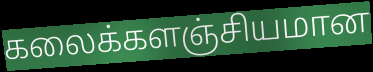
கலைக்களஞ்சியமான